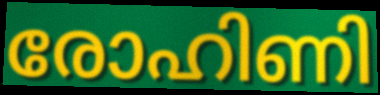
രോഹിണി